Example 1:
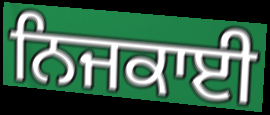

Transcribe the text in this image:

ਨਿਜਕਾਈ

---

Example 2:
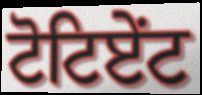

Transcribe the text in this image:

ਟੋਟਿਏਂਟ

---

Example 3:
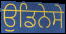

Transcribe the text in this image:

ਉਡਿਨੇਸੇ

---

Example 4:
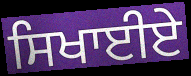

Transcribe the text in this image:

ਸਿਖਾਈਏ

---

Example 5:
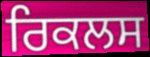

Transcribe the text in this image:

ਰਿਕਲਸ